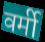
वर्मी